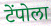
टेंपोला